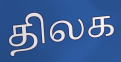
திலக